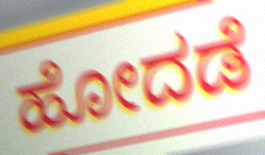
ಹೋದಡೆ